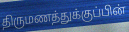
திருமணத்துக்குப்பின்